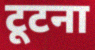
टूटना